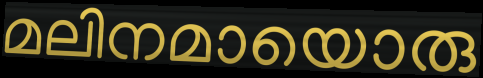
മലിനമായൊരു